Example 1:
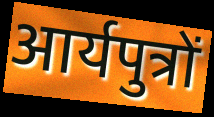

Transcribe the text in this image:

आर्यपुत्रों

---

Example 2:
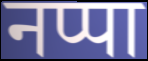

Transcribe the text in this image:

नप्पा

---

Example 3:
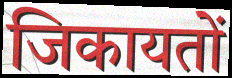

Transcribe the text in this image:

जिकायतों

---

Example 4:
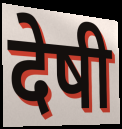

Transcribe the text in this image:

देषी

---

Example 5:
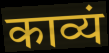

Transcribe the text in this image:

काव्यं